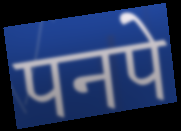
पनपे